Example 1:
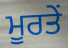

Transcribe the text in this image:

ਮੂਰਤੇਂ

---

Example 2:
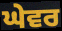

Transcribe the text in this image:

ਘੇਵਰ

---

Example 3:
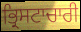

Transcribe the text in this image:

ਭ੍ਰਿਸਟਾਚਾਰੀ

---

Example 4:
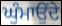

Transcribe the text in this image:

ਘੁੰਮਾਉਂਦੇ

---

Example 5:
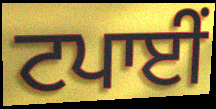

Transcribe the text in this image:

ਟਪਾਈਂ